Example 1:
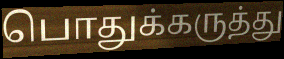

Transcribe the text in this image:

பொதுக்கருத்து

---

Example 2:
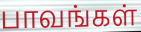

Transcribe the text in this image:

பாவங்கள்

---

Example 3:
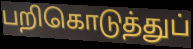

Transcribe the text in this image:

பறிகொடுத்துப்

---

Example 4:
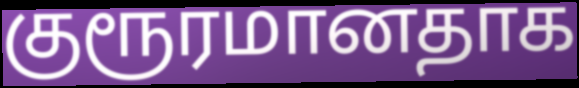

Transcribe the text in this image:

குரூரமானதாக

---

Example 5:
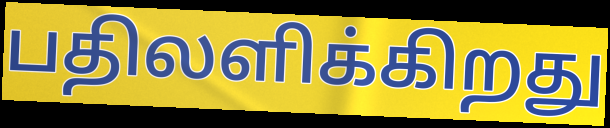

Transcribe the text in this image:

பதிலளிக்கிறது